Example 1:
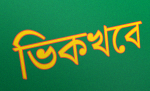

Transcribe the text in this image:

ভিকখবে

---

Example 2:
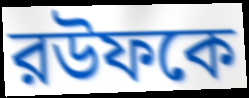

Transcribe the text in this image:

রউফকে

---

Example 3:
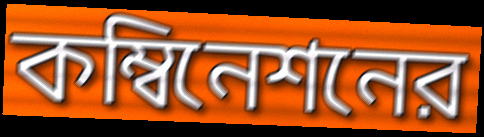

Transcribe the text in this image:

কম্বিনেশনের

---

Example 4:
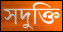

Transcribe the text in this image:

সদুক্তি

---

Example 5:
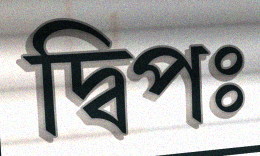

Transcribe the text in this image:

দ্বিপঃ